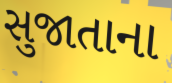
સુજાતાના